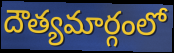
దౌత్యమార్గంలో